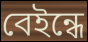
বেইন্ধে